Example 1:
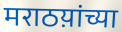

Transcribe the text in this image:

मराठय़ांच्या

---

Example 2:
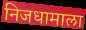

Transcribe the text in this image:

निजधामाला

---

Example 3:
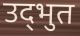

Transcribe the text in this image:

उद्भुत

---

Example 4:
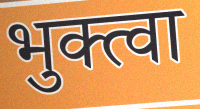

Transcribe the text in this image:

भुक्त्वा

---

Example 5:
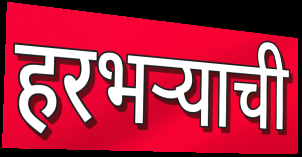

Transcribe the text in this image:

हरभऱ्याची